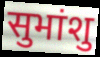
सुभांशु